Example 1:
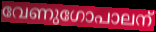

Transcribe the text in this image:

വേണുഗോപാലന്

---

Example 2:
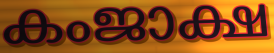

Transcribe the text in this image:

കംജാക്ഷ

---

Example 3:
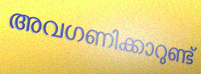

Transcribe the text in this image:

അവഗണിക്കാറുണ്ട്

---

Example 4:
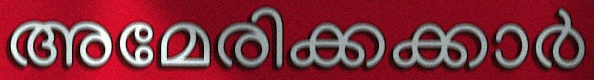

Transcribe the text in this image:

അമേരിക്കക്കാർ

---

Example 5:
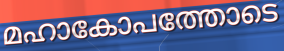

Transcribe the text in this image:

മഹാകോപത്തോടെ